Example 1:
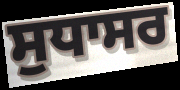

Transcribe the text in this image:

ਸੁਧਾਸਰ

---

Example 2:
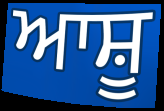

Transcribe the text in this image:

ਆਸ਼ੂ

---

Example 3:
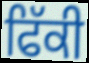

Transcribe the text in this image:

ਫਿੱਕੀ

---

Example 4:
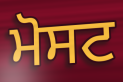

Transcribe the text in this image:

ਮੋਸਟ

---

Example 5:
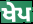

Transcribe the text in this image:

ਖੇਪ